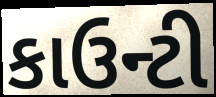
કાઉન્ટી